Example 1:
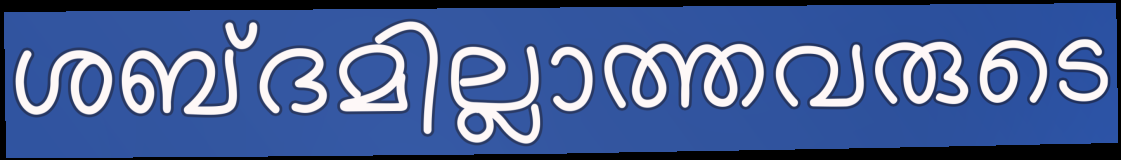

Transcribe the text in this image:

ശബ്ദമില്ലാത്തവരുടെ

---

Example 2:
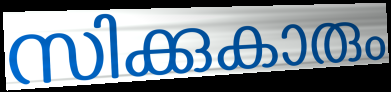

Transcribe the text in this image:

സിക്കുകാരും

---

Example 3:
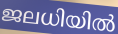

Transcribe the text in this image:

ജലധിയിൽ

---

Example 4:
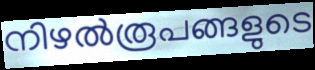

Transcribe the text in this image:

നിഴൽരൂപങ്ങളുടെ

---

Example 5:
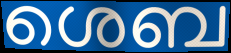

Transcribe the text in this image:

ശെബ